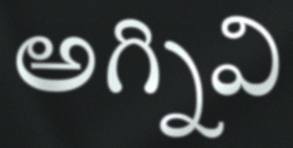
అగ్నివి